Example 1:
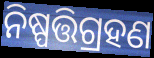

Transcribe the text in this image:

ନିଷ୍ପତ୍ତିଗ୍ରହଣ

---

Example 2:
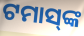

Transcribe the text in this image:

ଟମାସ୍‌ଙ୍କ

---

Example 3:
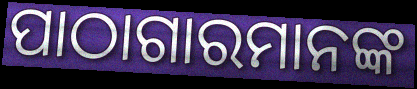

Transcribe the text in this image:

ପାଠାଗାରମାନଙ୍କ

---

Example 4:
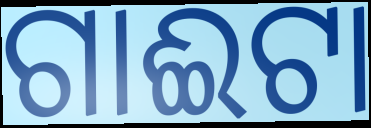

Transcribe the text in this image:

ଗାଈଟା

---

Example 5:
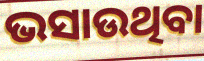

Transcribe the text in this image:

ଭସାଉଥିବା